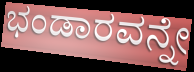
ಭಂಡಾರವನ್ನೇ